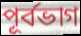
পূর্বভাগ